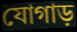
যোগাড়